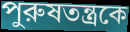
পুরুষতন্ত্রকে